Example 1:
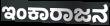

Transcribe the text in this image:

ಇಂಕಾರಾಜನ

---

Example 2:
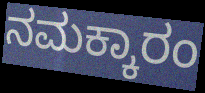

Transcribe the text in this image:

ನಮಕ್ಕಾರಂ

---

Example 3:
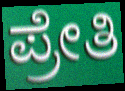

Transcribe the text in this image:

ಪ್ರೇತಿ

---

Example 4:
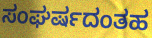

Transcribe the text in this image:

ಸಂಘರ್ಷದಂತಹ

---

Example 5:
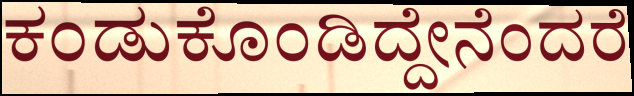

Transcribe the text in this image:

ಕಂಡುಕೊಂಡಿದ್ದೇನೆಂದರೆ